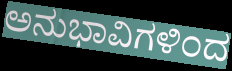
ಅನುಭಾವಿಗಳಿಂದ